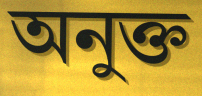
অনুক্ত